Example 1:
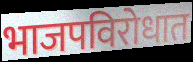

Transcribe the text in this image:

भाजपविरोधात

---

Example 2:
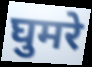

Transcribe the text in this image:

घुमरे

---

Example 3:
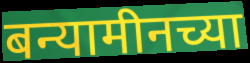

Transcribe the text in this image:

बन्यामीनच्या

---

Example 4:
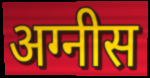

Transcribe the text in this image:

अग्नीस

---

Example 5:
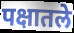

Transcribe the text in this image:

पक्षातले